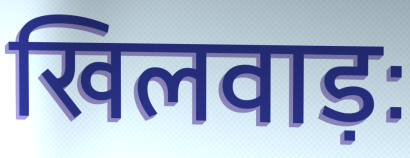
खिलवाड़ः